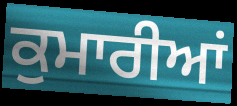
ਕੁਮਾਰੀਆਂ